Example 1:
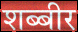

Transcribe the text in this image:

शब्बीर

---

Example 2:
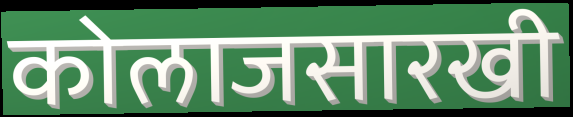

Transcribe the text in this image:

कोलाजसारखी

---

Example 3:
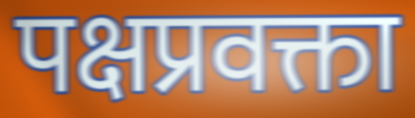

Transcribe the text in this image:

पक्षप्रवक्ता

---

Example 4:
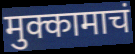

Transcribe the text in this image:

मुक्कामाचं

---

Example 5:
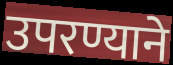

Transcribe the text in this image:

उपरण्याने